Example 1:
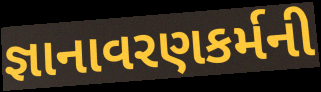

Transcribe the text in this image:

જ્ઞાનાવરણકર્મની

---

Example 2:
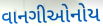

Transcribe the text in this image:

વાનગીઓનોય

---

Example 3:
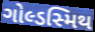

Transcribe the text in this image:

ગોલ્ડસ્મિથ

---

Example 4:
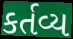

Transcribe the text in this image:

કર્તવ્ય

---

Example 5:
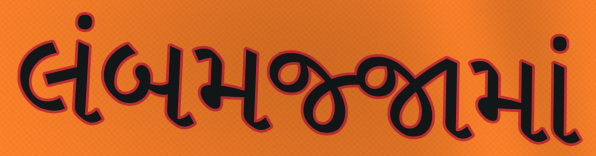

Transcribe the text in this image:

લંબમજ્જામાં